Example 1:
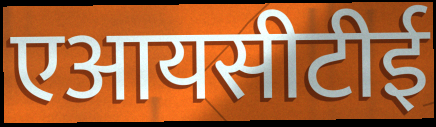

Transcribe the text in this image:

एआयसीटीई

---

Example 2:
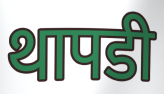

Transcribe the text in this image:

थापडी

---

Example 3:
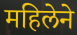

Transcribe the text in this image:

महिलेने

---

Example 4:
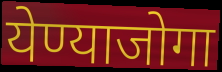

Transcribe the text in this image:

येण्याजोगा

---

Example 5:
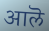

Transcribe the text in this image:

आलॆ